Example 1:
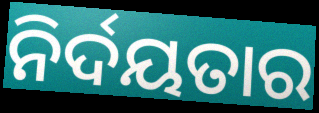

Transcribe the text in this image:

ନିର୍ଦୟତାର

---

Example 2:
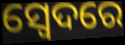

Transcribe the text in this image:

ସ୍ଵେଦରେ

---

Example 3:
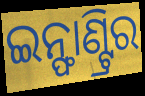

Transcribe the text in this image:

ଇନ୍ଫାଣ୍ଟ୍ରିର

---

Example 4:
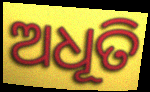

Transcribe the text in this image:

ଅଧୂତି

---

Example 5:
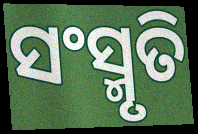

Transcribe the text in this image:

ସଂସ୍ମୃତି